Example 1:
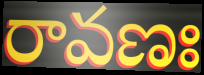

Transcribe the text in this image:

రావణః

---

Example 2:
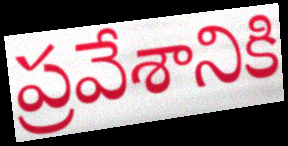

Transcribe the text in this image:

ప్రవేశానికి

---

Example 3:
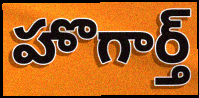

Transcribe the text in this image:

హొగార్త్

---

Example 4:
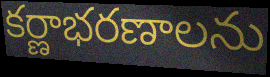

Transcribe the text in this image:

కర్ణాభరణాలను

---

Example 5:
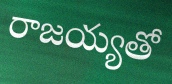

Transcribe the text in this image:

రాజయ్యతో